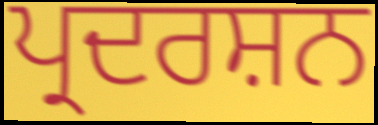
ਪ੍ਰਦਰਸ਼ਨ